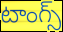
టాంగ్స్